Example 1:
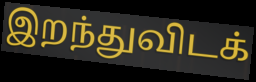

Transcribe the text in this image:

இறந்துவிடக்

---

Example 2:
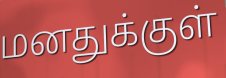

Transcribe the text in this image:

மனதுக்குள்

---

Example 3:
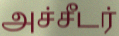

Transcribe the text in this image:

அச்சீடர்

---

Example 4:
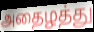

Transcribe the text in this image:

அதைழத்து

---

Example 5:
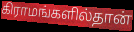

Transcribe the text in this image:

கிராமங்களில்தான்